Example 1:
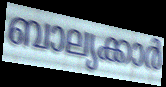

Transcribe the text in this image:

ബാല്യക്കാർ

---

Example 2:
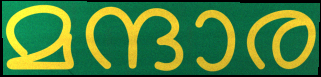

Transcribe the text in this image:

മന്ദാര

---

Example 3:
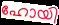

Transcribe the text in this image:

ഹോയി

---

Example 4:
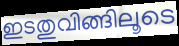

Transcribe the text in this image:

ഇടതുവിങ്ങിലൂടെ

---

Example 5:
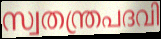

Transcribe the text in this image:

സ്വതന്ത്രപദവി